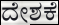
ದೇಶಕೆ